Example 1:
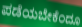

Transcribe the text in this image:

ಪಡೆಯಬೇಕೆಂದೂ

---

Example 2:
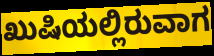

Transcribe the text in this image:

ಖುಷಿಯಲ್ಲಿರುವಾಗ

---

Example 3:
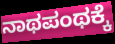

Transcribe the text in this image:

ನಾಥಪಂಥಕ್ಕೆ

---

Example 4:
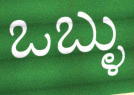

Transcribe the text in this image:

ಒಬ್ಳು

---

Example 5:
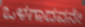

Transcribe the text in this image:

ಒಳಗಾದವನೇ